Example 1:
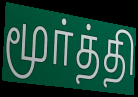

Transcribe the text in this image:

மூர்த்தி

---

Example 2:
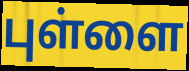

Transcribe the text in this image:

புள்ளை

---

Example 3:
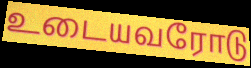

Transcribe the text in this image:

உடையவரோடு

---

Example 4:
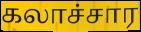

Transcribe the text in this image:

கலாச்சார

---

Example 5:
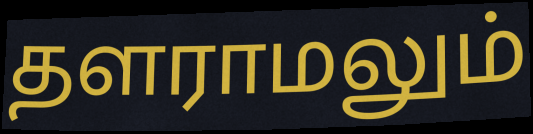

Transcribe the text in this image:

தளராமலும்